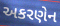
અકરણેન